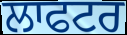
ਲਾਫਟਰ